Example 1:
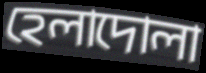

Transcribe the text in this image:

হেলাদোলা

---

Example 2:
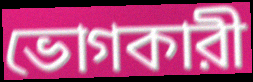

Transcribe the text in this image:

ভোগকারী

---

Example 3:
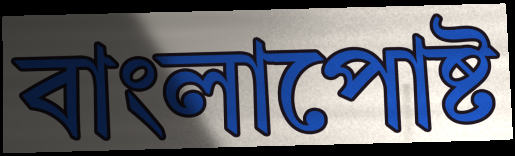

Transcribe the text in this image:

বাংলাপোষ্ট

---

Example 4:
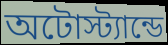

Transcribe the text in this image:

অটোস্ট্যান্ডে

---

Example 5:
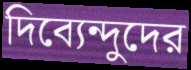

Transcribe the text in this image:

দিব্যেন্দুদের